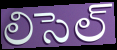
లిసెల్